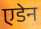
एडेन